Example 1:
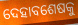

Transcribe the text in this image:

ଦେହାବଶେଷକୁ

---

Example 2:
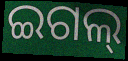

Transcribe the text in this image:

ଇଗଲ୍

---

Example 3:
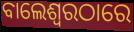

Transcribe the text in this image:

ବାଲେଶ୍ଵରଠାରେ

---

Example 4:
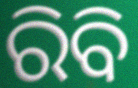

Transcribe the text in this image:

ରିବି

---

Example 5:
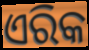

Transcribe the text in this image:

ଏରିକ